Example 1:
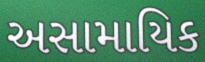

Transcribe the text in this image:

અસામાયિક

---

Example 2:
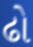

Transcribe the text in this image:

ઢો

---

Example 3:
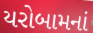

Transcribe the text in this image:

યરોબામનાં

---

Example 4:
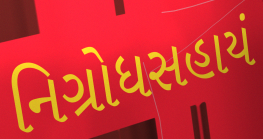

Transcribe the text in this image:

નિગ્રોધસહાયં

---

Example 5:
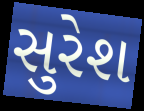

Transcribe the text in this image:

સુરેશ